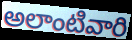
అలాంటివారి